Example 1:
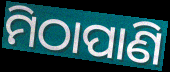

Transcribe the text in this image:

ମିଠାପାଣି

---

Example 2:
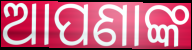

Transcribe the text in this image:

ଆପଣାଙ୍କ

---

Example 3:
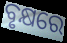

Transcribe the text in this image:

ବୃକ୍ଷରେ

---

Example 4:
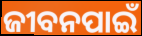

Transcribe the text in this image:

ଜୀବନପାଇଁ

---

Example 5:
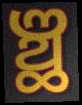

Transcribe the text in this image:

ଞ୍ଛ